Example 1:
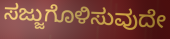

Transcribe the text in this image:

ಸಜ್ಜುಗೊಳಿಸುವುದೇ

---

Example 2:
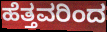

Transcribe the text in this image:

ಹೆತ್ತವರಿಂದ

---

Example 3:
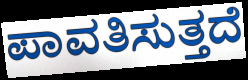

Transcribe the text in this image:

ಪಾವತಿಸುತ್ತದೆ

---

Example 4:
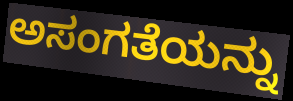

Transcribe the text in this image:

ಅಸಂಗತೆಯನ್ನು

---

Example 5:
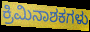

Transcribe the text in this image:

ಕ್ರಿಮಿನಾಶಕಗಳು